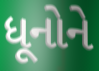
ધૂનોને